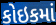
કોઇકમાં